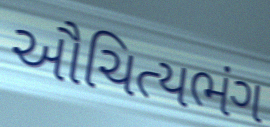
ઔચિત્યભંગ